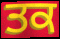
ਤਕ